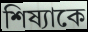
শিষ্যাকে